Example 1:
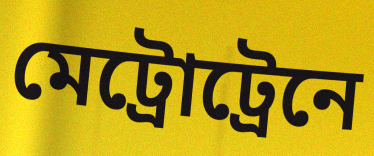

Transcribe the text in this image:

মেট্রোট্রেনে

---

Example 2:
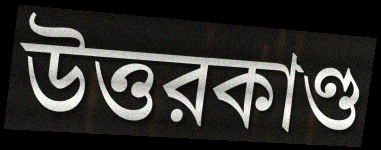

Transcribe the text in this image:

উত্তরকাণ্ড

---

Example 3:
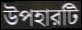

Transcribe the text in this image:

উপহারটি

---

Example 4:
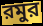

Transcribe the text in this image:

রমুর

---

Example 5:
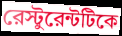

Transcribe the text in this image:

রেস্টুরেন্টটিকে